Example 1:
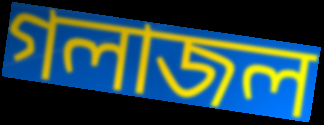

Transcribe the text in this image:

গলাজল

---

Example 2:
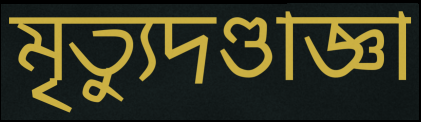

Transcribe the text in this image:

মৃত্যুদণ্ডাজ্ঞা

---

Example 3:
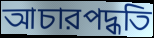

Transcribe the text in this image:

আচারপদ্ধতি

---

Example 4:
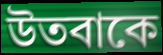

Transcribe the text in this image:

উতবাকে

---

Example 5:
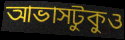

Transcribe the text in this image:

আভাসটুকুও